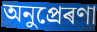
অনুপ্ৰেৰণা